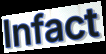
Infact